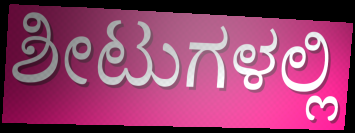
ಶೀಟುಗಳಲ್ಲಿ